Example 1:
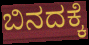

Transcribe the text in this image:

ಬಿನದಕ್ಕೆ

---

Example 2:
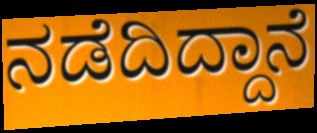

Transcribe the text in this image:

ನಡೆದಿದ್ದಾನೆ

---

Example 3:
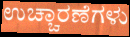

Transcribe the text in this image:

ಉಚ್ಚಾರಣೆಗಳು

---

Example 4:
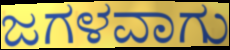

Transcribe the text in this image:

ಜಗಳವಾಗು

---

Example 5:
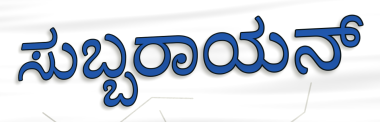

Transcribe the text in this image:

ಸುಬ್ಬರಾಯನ್